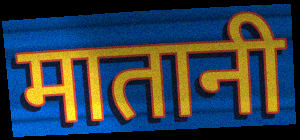
मातानी